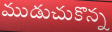
ముడుచుకొన్న